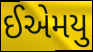
ઈએમયુ